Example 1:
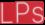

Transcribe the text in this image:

LPs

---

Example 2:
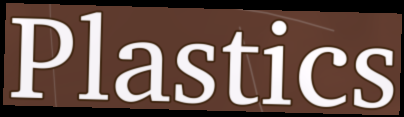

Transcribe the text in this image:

Plastics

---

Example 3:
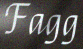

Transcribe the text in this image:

Fagg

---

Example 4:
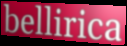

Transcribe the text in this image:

bellirica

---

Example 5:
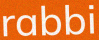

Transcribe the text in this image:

rabbi